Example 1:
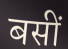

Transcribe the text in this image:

बसीं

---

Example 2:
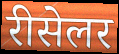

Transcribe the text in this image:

रीसेलर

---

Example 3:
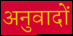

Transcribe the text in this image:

अनुवादों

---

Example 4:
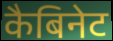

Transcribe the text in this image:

कैबिनेट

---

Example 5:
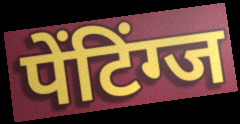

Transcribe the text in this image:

पेंटिंग्ज